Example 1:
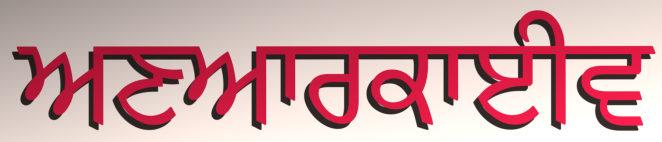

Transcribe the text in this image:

ਅਣਆਰਕਾਈਵ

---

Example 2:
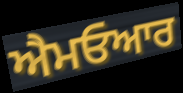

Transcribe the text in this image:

ਐਮਓਆਰ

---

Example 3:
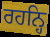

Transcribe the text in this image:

ਰਹਨ੍ਹਿ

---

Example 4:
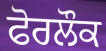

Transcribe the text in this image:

ਫੋਰਲੌਕ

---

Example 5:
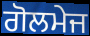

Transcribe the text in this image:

ਗੋਲਮੇਜ